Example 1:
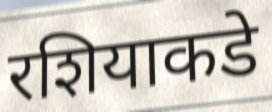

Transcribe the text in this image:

रशियाकडे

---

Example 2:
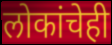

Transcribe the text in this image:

लोकांचेही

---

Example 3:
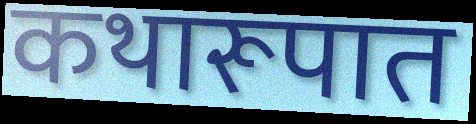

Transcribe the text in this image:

कथारूपात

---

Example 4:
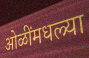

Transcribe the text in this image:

ओळींमधल्या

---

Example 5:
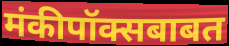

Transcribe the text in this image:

मंकीपॉक्सबाबत